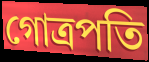
গোত্রপতি